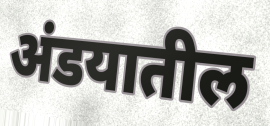
अंडयातील